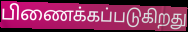
பிணைக்கப்படுகிறது